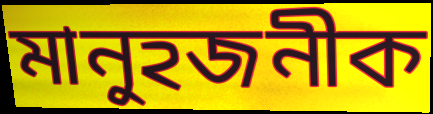
মানুহজনীক